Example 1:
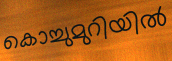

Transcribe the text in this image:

കൊച്ചുമുറിയിൽ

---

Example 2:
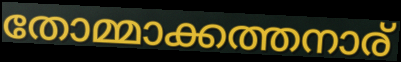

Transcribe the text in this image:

തോമ്മാക്കത്തനാര്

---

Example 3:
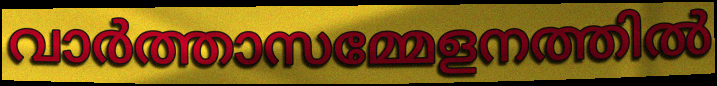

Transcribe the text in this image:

വാർത്താസമ്മേളനത്തിൽ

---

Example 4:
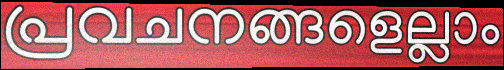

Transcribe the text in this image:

പ്രവചനങ്ങളെല്ലാം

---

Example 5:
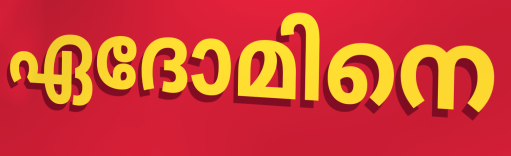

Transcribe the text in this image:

ഏദോമിനെ